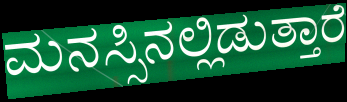
ಮನಸ್ಸಿನಲ್ಲಿಡುತ್ತಾರೆ